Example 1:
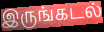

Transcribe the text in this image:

இருங்கடல்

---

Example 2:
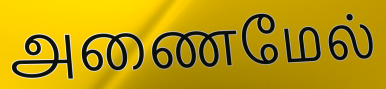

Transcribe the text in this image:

அணைமேல்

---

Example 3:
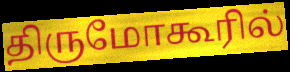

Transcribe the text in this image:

திருமோகூரில்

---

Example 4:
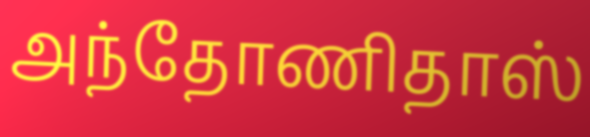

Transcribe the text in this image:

அந்தோணிதாஸ்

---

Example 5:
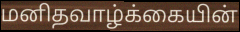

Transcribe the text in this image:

மனிதவாழ்க்கையின்